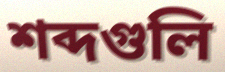
শব্দগুলি